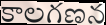
కాలగణన